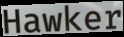
Hawker